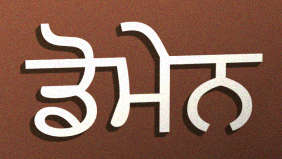
ਡੋਮੇਨ